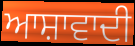
ਆਸ਼ਾਵਾਦੀ